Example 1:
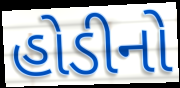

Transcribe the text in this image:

હોડીનો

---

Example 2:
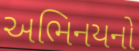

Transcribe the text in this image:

અભિનયનો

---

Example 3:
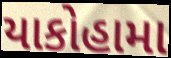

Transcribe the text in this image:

યાકોહામા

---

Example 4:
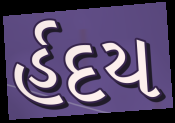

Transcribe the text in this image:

ર્હદય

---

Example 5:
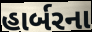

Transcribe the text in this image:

હાર્બરના